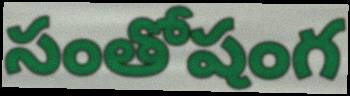
సంతోషంగ